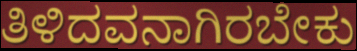
ತಿಳಿದವನಾಗಿರಬೇಕು